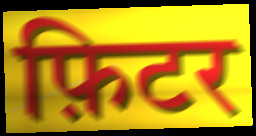
फ़िटर